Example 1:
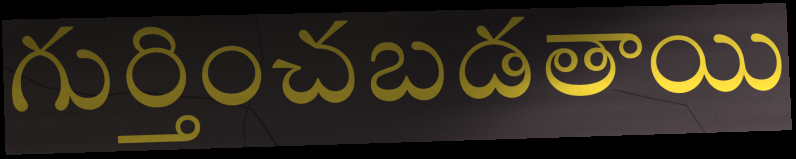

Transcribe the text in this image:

గుర్తించబడతాయి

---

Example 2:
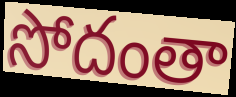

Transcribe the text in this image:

సోదంతా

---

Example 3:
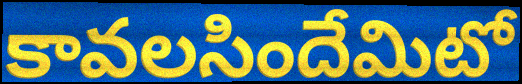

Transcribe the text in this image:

కావలసిందేమిటో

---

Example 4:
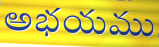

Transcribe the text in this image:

అభయము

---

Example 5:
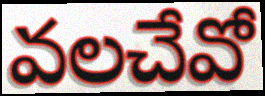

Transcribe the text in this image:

వలచేవో